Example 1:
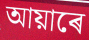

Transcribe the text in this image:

আয়াৰে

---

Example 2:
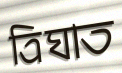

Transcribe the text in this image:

ত্ৰিঘাত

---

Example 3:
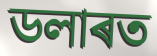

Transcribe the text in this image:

ডলাৰত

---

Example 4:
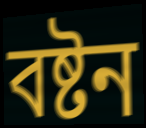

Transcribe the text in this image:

বষ্টন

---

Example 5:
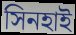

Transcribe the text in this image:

সিনহাই